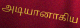
அடியானாகிய